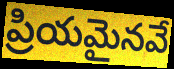
ప్రియమైనవే